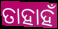
ତାହାହଁ